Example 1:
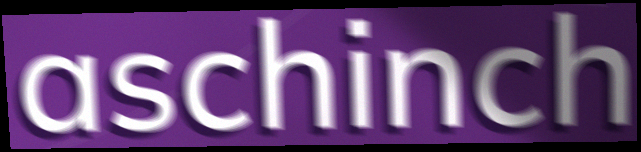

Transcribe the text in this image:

aschinch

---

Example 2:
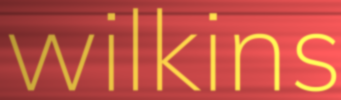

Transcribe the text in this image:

wilkins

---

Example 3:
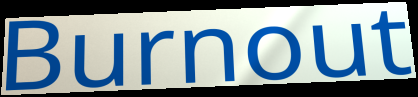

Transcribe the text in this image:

Burnout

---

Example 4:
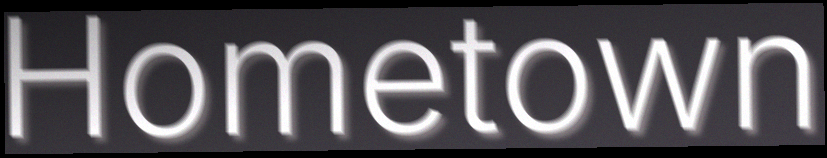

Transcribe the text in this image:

Hometown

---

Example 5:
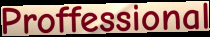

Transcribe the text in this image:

Proffessional